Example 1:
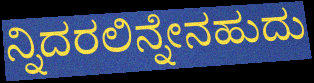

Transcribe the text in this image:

ನ್ನಿದರಲಿನ್ನೇನಹುದು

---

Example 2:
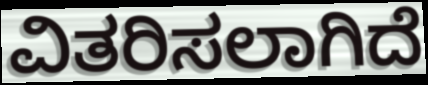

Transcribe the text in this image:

ವಿತರಿಸಲಾಗಿದೆ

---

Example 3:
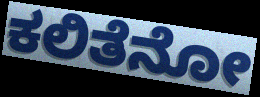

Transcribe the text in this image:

ಕಲಿತೆನೋ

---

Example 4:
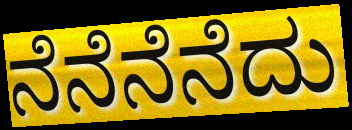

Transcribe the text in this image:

ನೆನೆನೆನೆದು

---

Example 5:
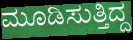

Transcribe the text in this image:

ಮೂಡಿಸುತ್ತಿದ್ದ